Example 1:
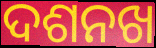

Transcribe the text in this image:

ଦଶନଖ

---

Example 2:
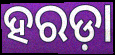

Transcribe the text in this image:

ହରଡ଼ା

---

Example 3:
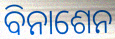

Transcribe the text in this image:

ବିନାଶେନ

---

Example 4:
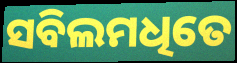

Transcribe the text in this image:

ସବିଲମଧିତେ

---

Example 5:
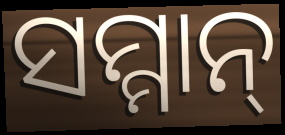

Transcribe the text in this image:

ସମ୍ମାନ୍